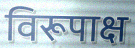
विरूपाक्ष